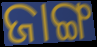
ଜାଙ୍ଗ